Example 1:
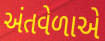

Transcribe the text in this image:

અંતવેળાએ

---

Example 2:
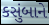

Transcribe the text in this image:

કસુંબાને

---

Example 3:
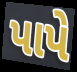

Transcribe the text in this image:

પાપે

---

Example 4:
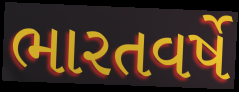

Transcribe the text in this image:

ભારતવર્ષે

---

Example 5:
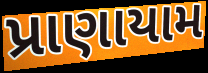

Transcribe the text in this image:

પ્રાણાયામ